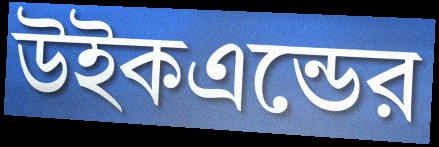
উইকএন্ডের